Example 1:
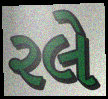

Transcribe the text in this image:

રલે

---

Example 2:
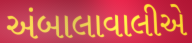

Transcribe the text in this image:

અંબાલાવાલીએ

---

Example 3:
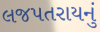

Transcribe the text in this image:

લજપતરાયનું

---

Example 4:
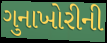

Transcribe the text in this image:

ગુનાખોરીની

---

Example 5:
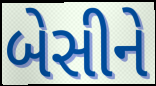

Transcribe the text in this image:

બેસીને